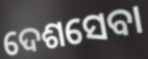
ଦେଶସେବା